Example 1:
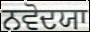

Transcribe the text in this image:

ਨਵੋਦਯਾ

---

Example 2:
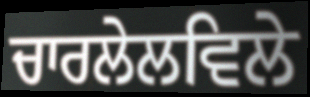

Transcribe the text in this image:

ਚਾਰਲੇਲਵਿਲੇ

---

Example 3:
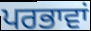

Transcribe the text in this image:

ਪਰਭਾਵਾਂ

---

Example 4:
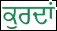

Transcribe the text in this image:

ਕੁਰਦਾਂ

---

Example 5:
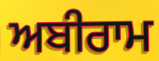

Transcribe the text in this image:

ਅਬੀਰਾਮ